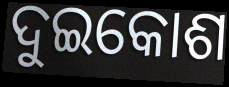
ଦୁଇକୋଶ